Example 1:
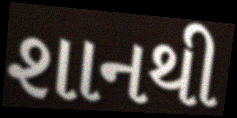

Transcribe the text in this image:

શાનથી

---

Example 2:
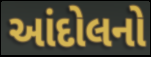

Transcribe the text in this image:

આંદોલનો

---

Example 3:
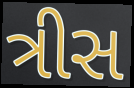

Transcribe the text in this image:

ત્રીસ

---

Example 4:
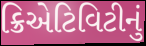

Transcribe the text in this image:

ક્રિએટિવિટીનું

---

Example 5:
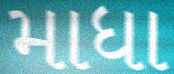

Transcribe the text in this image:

માધા